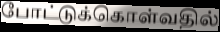
போட்டுக்கொள்வதில்